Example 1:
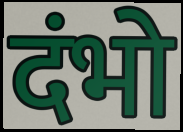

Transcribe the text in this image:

दंभो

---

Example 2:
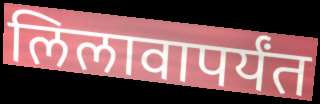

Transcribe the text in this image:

लिलावापर्यंत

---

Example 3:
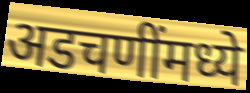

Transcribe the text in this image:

अडचणींमध्ये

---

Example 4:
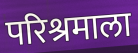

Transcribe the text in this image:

परिश्रमाला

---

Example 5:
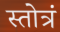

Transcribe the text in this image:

स्तोत्रं